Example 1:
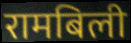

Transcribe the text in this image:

रामबिली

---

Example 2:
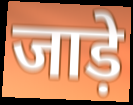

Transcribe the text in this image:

जाड़े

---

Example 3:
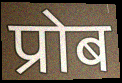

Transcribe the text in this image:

प्रोब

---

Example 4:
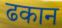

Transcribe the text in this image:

ढकान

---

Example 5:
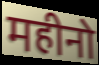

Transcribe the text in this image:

महीनो